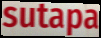
sutapa